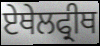
ਏਥੇਲਫ੍ਰੀਥ